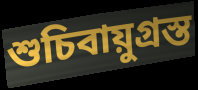
শুচিবায়ুগ্ৰস্ত